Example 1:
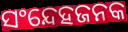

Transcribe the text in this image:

ସଂନ୍ଦେହଜନକ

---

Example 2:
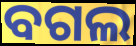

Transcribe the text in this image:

ବଗଲ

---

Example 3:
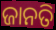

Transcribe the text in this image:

ଜାନତି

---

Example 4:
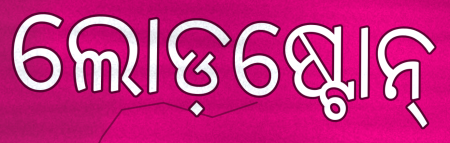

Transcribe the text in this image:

ଲୋଡ଼ଷ୍ଟୋନ୍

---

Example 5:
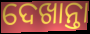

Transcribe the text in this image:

ଦେଖାନ୍ତା